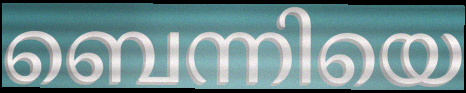
ബെന്നിയെ